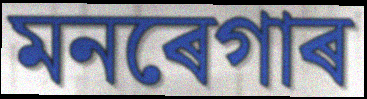
মনৰেগাৰ